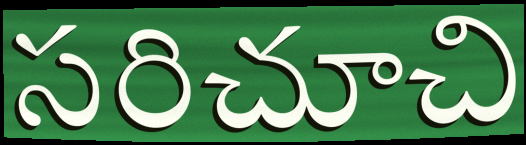
సరిచూచి